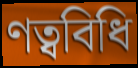
ণত্ববিধি